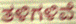
ತಳಿಗಳಿವೆ